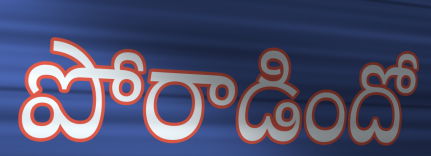
పోరాడిందో